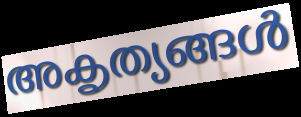
അകൃത്യങ്ങൾ